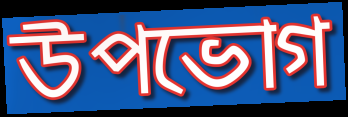
উপভোগ